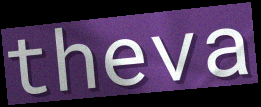
theva